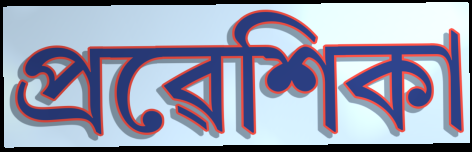
প্ৰৱেশিকা